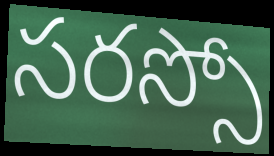
సరస్సో